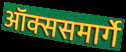
ऑक्ससमार्गे